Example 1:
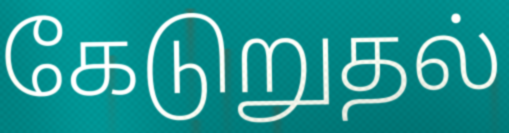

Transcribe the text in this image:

கேடுறுதல்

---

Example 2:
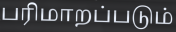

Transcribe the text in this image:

பரிமாறப்படும்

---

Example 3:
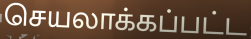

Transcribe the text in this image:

செயலாக்கப்பட்ட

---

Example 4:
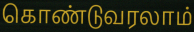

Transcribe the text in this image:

கொண்டுவரலாம்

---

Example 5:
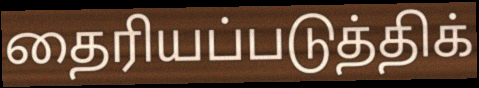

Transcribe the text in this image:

தைரியப்படுத்திக்